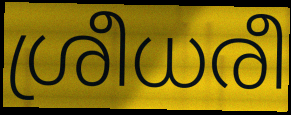
ശ്രീധരീ